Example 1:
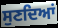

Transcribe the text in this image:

ਸੁਣਦਿਆਂ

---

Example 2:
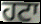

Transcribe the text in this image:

ਹਟਾ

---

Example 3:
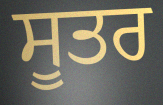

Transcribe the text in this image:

ਸੂਤਰ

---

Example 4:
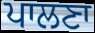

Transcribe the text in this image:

ਪਾਲਣਾ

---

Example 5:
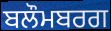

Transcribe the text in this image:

ਬਲੌਮਬਰਗ